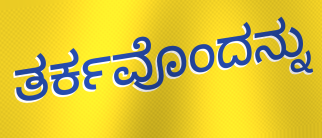
ತರ್ಕವೊಂದನ್ನು